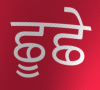
ਛੂਛੇ